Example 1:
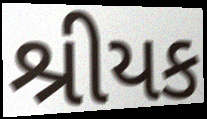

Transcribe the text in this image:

શ્રીયક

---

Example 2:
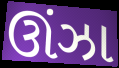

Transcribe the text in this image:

ઊંઝા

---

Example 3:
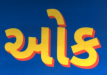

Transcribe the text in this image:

ઓક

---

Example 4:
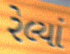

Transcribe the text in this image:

રેલ્યાં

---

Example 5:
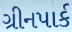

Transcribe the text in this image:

ગ્રીનપાર્ક